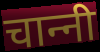
चान्नी